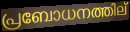
പ്രബോധനത്തില്